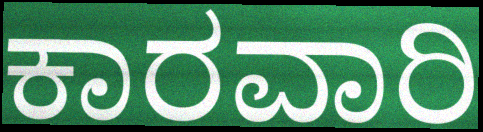
ಕಾರವಾರಿ